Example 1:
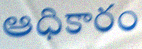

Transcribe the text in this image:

ఆధికారం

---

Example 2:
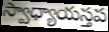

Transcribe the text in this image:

స్వాధ్యాయస్తప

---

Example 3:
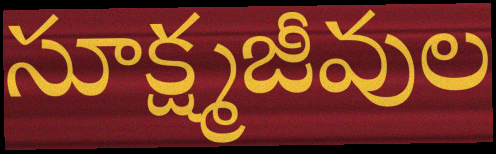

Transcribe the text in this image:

సూక్ష్మజీవుల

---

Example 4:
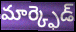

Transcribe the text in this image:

మార్క్ఫెడ్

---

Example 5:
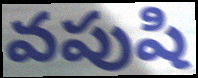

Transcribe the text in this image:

వపుషి